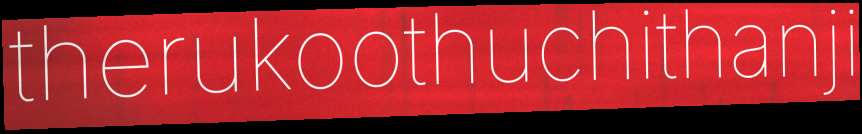
therukoothuchithanji